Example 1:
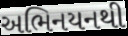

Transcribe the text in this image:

અભિનયનથી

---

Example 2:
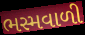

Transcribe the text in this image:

ભસ્મવાળી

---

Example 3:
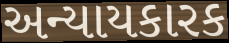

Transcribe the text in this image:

અન્યાયકારક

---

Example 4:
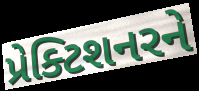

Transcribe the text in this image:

પ્રેક્ટિશનરને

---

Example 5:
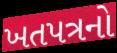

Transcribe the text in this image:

ખતપત્રનો